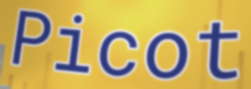
Picot